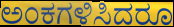
ಅಂಕಗಳಿಸಿದರೂ